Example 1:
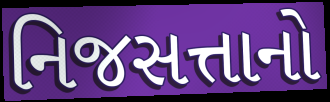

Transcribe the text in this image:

નિજસત્તાનો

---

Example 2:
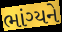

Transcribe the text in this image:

ભાંગ્યને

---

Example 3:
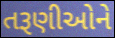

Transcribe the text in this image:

તરૂણીઓને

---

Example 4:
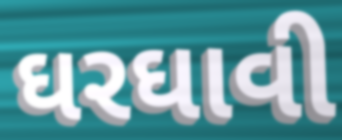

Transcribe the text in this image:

ઘરઘાવી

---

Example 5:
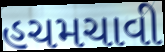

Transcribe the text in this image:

હચમચાવી